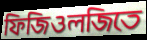
ফিজিওলজিতে